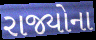
રાજ્યોના